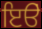
ਇੳਂ